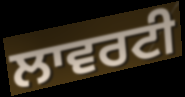
ਲਾਵਰਟੀ